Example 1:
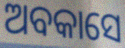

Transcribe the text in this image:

ଅବକାସେ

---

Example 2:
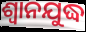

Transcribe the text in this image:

ଶ୍ଵାନଯୁଦ୍ଧ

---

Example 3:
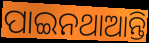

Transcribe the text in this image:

ପାଇନଥାଆନ୍ତି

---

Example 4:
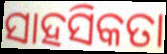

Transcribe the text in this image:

ସାହସିକତା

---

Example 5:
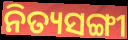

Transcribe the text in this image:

ନିତ୍ୟସଙ୍ଗୀ